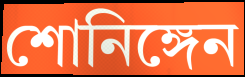
শোনিঙ্গেন